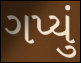
ગપ્યું